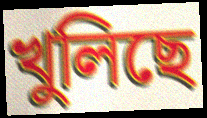
খুলিছে